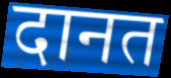
दानत